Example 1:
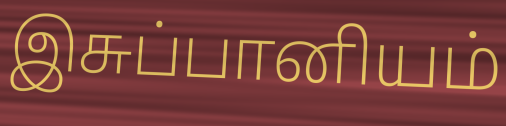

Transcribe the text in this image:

இசுப்பானியம்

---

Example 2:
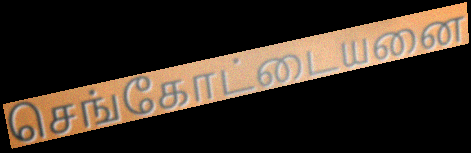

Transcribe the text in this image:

செங்கோட்டையனை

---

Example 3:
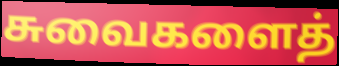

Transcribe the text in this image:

சுவைகளைத்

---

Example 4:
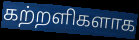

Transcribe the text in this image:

கற்றளிகளாக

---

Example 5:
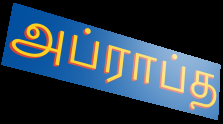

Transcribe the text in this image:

அப்ராப்த